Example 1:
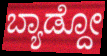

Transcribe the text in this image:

ಬ್ಯಾಡ್ದೋ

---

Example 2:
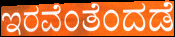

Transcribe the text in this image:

ಇರವೆಂತೆಂದಡೆ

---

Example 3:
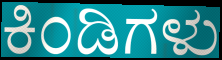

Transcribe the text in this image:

ಕಿಂಡಿಗಳು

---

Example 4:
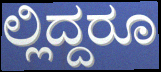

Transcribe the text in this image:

ಲ್ಲಿದ್ದರೂ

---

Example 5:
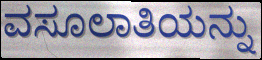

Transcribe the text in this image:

ವಸೂಲಾತಿಯನ್ನು